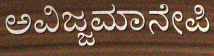
ಅವಿಜ್ಜಮಾನೇಪಿ